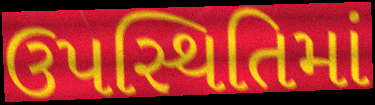
ઉપસ્થિતિમાં